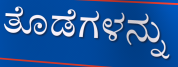
ತೊಡೆಗಳನ್ನು